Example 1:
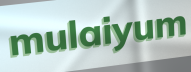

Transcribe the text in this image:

mulaiyum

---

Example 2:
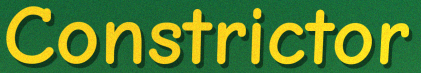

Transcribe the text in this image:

Constrictor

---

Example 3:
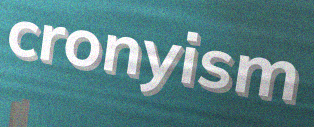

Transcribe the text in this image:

cronyism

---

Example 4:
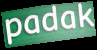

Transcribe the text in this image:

padak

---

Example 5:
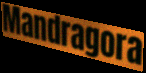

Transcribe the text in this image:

Mandragora